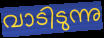
വാടിടുന്നു